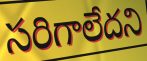
సరిగాలేదని